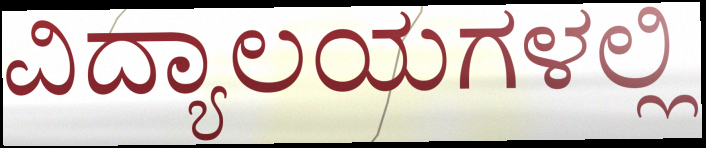
ವಿದ್ಯಾಲಯಗಳಲ್ಲಿ